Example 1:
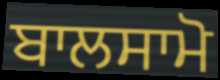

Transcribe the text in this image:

ਬਾਲਸਾਮੋ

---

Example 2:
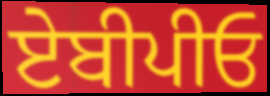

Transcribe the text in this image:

ਏਬੀਪੀਓ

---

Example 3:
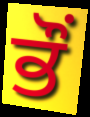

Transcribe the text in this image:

ਭੌਂ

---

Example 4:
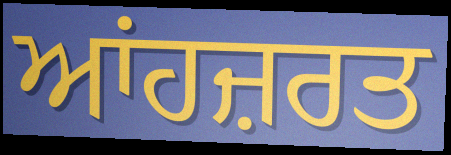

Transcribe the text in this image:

ਆਂਹਜ਼ਰਤ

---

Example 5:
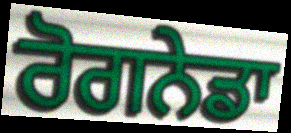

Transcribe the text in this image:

ਰੋਗਨੇਡਾ